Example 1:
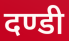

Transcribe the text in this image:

दण्डी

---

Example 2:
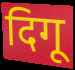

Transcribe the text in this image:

दिगू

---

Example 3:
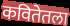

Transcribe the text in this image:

कवितेतला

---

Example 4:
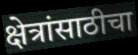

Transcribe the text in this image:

क्षेत्रांसाठीचा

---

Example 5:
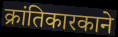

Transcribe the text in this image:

क्रांतिकारकाने